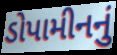
ડોપામીનનું